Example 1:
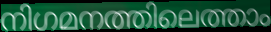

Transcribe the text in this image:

നിഗമനത്തിലെത്താം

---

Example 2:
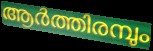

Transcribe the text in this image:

ആർത്തിരമ്പും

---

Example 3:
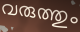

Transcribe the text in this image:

വരുത്തും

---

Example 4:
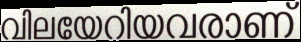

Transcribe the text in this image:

വിലയേറിയവരാണ്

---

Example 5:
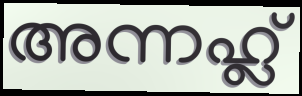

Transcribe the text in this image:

അന്നഹ്ല്